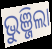
ଭୁଞ୍ଜିଲା